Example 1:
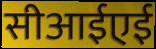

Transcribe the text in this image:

सीआईएई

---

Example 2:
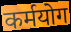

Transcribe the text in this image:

कर्मयोग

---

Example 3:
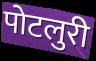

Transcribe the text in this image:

पोटलुरी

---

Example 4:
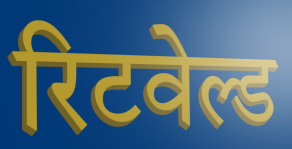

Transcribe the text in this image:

रिटवेल्ड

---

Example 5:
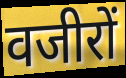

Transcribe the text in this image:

वजीरों